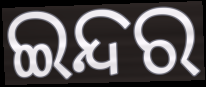
ଇନ୍ଦର